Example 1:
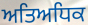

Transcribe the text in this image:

ਅਤਿਅਧਿਕ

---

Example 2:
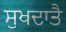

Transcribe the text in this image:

ਸੁਖਦਾਤੈ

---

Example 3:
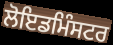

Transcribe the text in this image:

ਲੋਇਡਮਿੰਸਟਰ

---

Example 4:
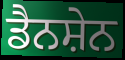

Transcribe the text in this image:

ਡੈਨਸ਼ੇਨ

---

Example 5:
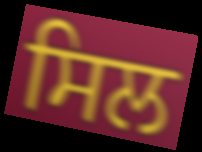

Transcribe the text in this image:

ਸਿਲ